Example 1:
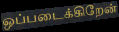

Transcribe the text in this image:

ஒப்படைக்கிறேன்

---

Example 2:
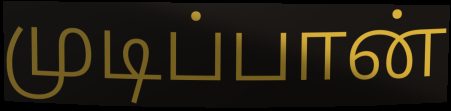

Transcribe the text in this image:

முடிப்பான்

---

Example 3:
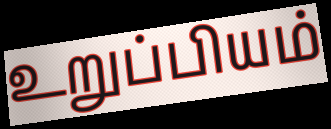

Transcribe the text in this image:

உறுப்பியம்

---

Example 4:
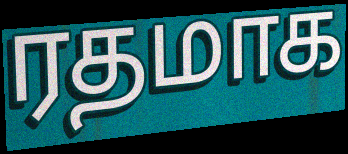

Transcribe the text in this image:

ரதமாக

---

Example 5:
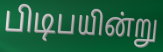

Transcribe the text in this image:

பிடிபயின்று